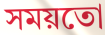
সময়তো